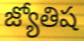
జ్యోతిష